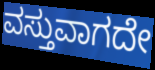
ವಸ್ತುವಾಗದೇ